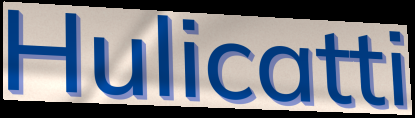
Hulicatti